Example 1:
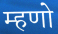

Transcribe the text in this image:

म्हणो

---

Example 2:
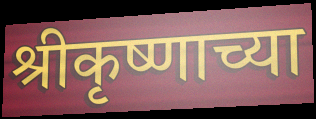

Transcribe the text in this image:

श्रीकृष्णाच्या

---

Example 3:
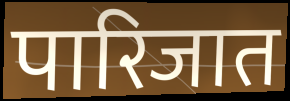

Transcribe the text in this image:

पारिजात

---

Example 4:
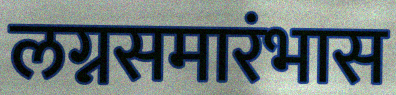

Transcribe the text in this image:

लग्नसमारंभास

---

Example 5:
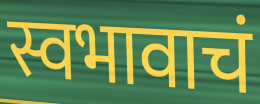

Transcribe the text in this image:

स्वभावाचं